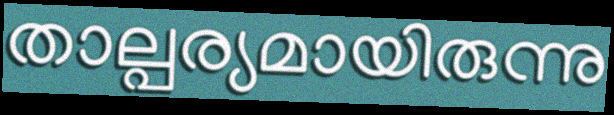
താല്പര്യമായിരുന്നു